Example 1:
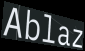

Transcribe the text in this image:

Ablaz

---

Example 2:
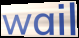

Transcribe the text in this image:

wail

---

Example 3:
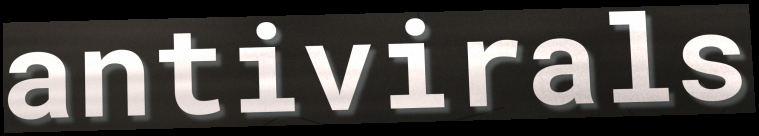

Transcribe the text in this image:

antivirals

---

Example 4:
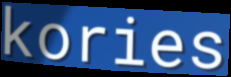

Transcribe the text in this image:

kories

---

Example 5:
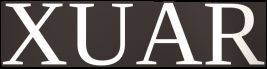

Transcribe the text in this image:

XUAR